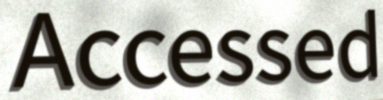
Accessed